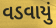
વડવાયું